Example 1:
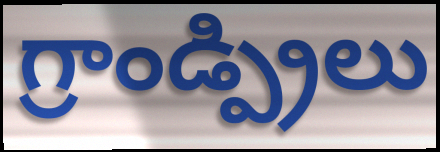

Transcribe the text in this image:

గ్రాండ్ప్రిలు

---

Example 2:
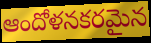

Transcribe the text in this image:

ఆందోళనకరమైన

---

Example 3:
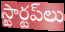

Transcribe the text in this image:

స్టార్టప్‌లు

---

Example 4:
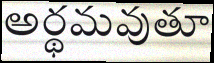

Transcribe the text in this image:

అర్థమవుతూ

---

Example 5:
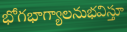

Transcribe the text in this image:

భోగభాగ్యాలనుభవిస్తూ